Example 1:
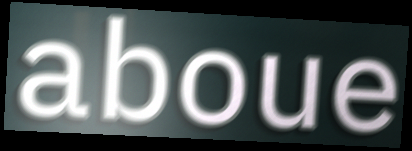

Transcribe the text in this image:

aboue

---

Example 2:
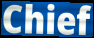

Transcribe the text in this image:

Chief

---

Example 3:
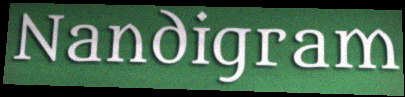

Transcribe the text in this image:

Nandigram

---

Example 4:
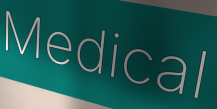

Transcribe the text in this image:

Medical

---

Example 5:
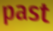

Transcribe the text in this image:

past